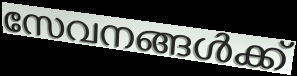
സേവനങ്ങൾക്ക്